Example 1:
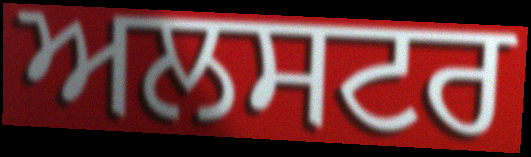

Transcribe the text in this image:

ਅਲਸਟਰ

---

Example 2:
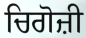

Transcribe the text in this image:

ਚਿਗੋਜ਼ੀ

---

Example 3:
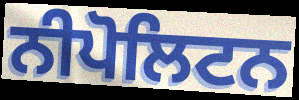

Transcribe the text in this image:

ਨੀਪੋਲਿਟਨ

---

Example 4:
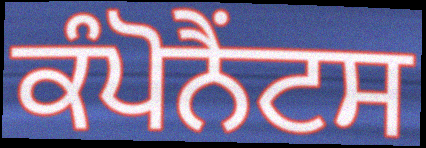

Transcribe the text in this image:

ਕੰਪੋਨੈਂਟਸ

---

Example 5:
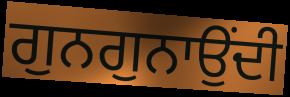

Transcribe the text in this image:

ਗੁਨਗੁਨਾਉਂਦੀ